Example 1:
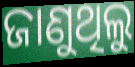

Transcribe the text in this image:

ଜାଣୁଥିଲୁ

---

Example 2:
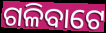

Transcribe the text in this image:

ଗଳିବାଟେ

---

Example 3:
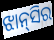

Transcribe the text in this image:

ଝାନ୍‌ସିର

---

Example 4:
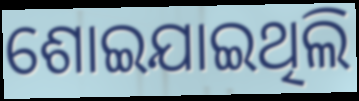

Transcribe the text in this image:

ଶୋଇଯାଇଥିଲି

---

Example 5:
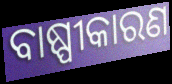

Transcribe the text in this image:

ବାଷ୍ପୀକାରଣ